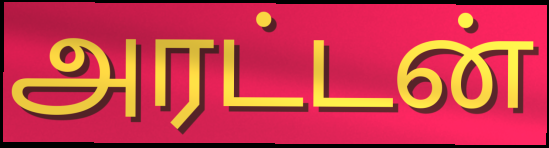
அரட்டன்